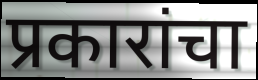
प्रकारांचा